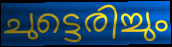
ചുട്ടെരിച്ചും